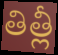
తిత్లీ